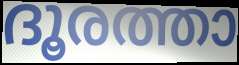
ദൂരത്താ